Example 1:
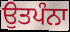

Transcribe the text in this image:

ਉਤਪੰਨਾ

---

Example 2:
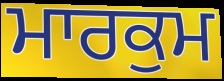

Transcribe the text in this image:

ਮਾਰਕੁਮ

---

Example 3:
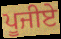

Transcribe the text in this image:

ਪੂਜੀਏ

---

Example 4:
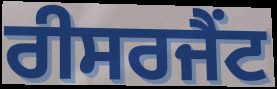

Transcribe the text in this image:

ਰੀਸਰਜੈਂਟ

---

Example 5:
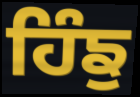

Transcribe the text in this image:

ਹਿੰਙੁ